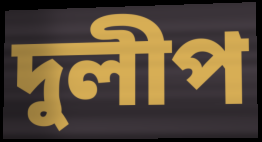
দুলীপ